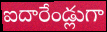
ఐదారేండ్లుగా